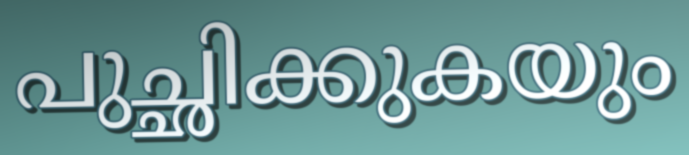
പുച്ഛിക്കുകയും